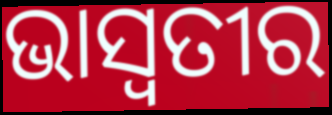
ଭାସ୍ଵତୀର